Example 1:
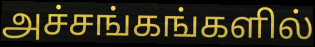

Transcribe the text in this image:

அச்சங்கங்களில்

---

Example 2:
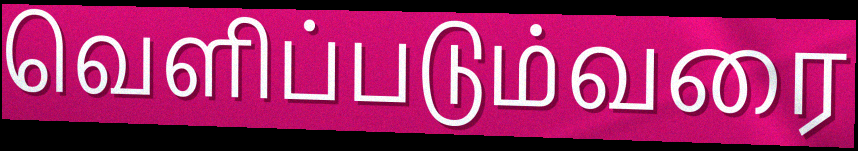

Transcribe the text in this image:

வெளிப்படும்வரை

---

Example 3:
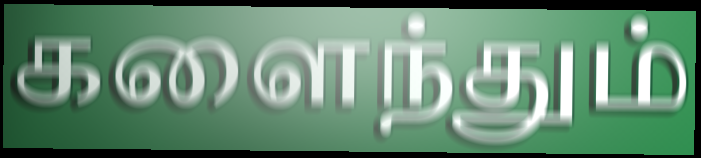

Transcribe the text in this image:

களைந்தும்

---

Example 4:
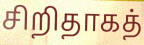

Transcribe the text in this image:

சிறிதாகத்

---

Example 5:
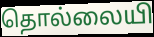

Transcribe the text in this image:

தொல்லையி